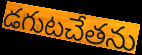
డగుటచేతను